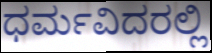
ಧರ್ಮವಿದರಲ್ಲಿ